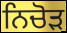
ਨਿਚੋੜ